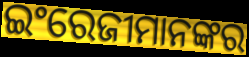
ଇଂରେଜୀମାନଙ୍କର